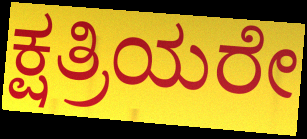
ಕ್ಷತ್ರಿಯರೇ